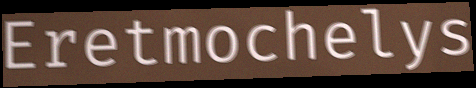
Eretmochelys